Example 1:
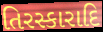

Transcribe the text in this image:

તિરસ્કારાદિ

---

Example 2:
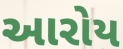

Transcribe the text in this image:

આરોય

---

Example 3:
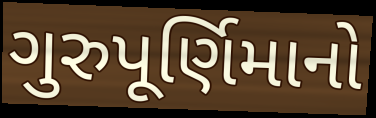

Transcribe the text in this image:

ગુરુપૂર્ણિમાનો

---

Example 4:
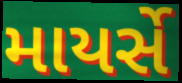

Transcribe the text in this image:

માયર્સે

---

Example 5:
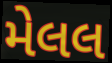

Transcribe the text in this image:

મેલલ